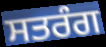
ਸਤਰੰਗ